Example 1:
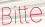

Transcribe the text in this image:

Bitte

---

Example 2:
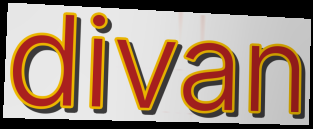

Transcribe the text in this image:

divan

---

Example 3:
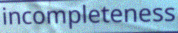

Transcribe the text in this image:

incompleteness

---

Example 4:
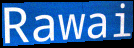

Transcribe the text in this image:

Rawai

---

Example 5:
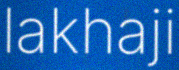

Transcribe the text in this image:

lakhaji